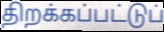
திறக்கப்பட்டுப்